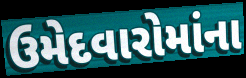
ઉમેદવારોમાંના